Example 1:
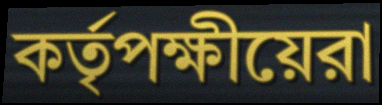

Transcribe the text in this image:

কর্তৃপক্ষীয়েরা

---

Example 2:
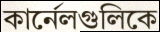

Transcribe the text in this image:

কার্নেলগুলিকে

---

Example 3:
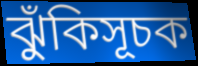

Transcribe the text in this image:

ঝুঁকিসূচক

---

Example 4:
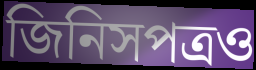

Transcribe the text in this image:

জিনিসপত্রও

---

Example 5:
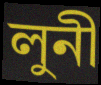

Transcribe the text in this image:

লুনী